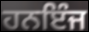
ਹਨਇੰਜ